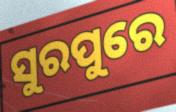
ସୁରପୁରେ